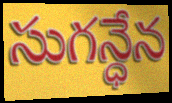
సుగన్ధేన